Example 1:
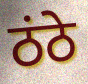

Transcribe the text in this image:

ठंठे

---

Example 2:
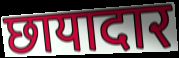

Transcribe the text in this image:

छायादार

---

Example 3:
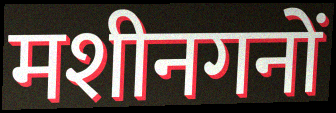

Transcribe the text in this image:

मशीनगनों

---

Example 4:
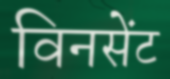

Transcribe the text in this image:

विनसेंट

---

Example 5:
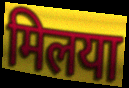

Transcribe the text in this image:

मिलया